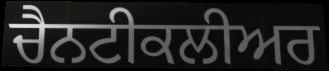
ਚੈਨਟੀਕਲੀਅਰ